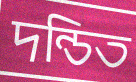
দন্ডিত